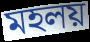
মহলয়